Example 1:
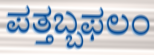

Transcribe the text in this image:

ಪತ್ತಬ್ಬಫಲಂ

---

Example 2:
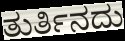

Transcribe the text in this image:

ತುರ್ತಿನದು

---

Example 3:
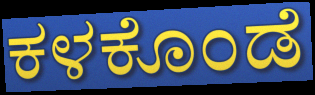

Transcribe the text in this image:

ಕಳಕೊಂಡೆ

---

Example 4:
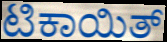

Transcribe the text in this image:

ಟಿಕಾಯಿತ್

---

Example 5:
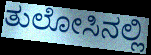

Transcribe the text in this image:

ತುಲೋಸಿನಲ್ಲಿ